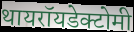
थायरॉयडेक्टोमी